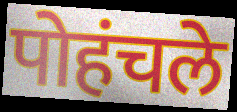
पोहंचले